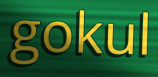
gokul